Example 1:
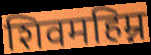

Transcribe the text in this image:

शिवमहिम्न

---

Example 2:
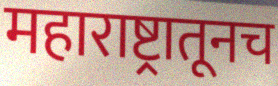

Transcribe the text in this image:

महाराष्ट्रातूनच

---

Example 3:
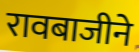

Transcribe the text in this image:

रावबाजीने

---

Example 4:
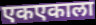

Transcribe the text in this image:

एकएकाला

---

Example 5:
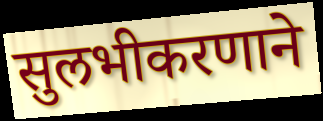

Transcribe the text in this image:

सुलभीकरणाने